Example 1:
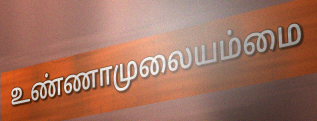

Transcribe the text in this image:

உண்ணாமுலையம்மை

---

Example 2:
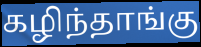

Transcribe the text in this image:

கழிந்தாங்கு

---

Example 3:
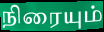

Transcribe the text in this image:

நிரையும்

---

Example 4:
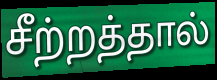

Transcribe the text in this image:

சீற்றத்தால்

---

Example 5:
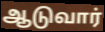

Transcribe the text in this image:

ஆடுவார்